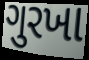
ગુરખા